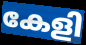
കേളി